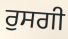
ਰੁਸਗੀ